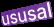
ususal